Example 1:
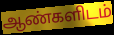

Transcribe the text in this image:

ஆண்களிடம்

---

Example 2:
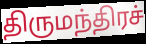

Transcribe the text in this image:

திருமந்திரச்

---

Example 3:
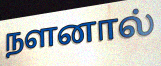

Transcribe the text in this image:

நளனால்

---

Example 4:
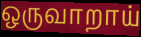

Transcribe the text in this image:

ஒருவாறாய்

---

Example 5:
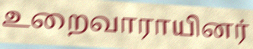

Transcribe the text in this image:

உறைவாராயினர்